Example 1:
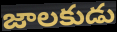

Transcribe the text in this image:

జాలకుడు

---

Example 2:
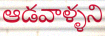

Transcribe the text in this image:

ఆడవాళ్ళని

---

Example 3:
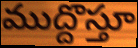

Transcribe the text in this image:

ముద్దొస్తూ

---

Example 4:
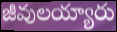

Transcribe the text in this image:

జీవులయ్యారు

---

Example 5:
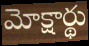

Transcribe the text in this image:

మోక్షార్థు